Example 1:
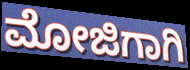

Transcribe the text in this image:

ಮೋಜಿಗಾಗಿ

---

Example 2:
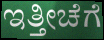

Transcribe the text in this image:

ಇತ್ತೀಚೆಗೆ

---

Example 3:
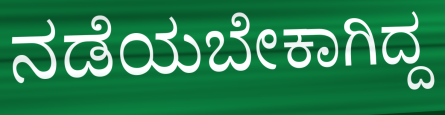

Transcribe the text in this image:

ನಡೆಯಬೇಕಾಗಿದ್ದ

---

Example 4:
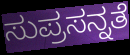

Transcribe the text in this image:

ಸುಪ್ರಸನ್ನತೆ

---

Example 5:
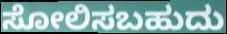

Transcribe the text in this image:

ಸೋಲಿಸಬಹುದು